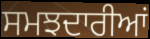
ਸਮਝਦਾਰੀਆਂ